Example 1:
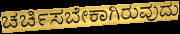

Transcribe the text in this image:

ಚರ್ಚಿಸಬೇಕಾಗಿರುವುದು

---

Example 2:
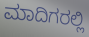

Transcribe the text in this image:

ಮಾದಿಗರಲ್ಲಿ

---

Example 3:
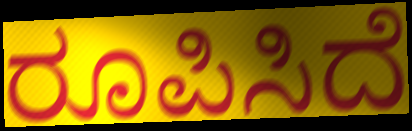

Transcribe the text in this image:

ರೂಪಿಸಿದೆ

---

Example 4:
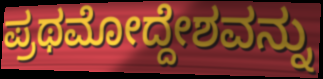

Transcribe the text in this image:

ಪ್ರಥಮೋದ್ದೇಶವನ್ನು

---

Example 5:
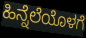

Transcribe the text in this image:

ಹಿನ್ನೆಲೆಯೊಳಗೆ